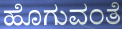
ಹೊಗುವಂತೆ